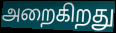
அறைகிறது